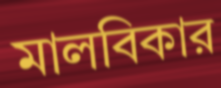
মালবিকার